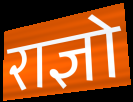
राज्ञो